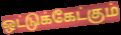
ஒட்டுக்கேட்கும்